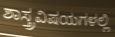
ಶಾಸ್ತ್ರವಿಷಯಗಳಲ್ಲಿ